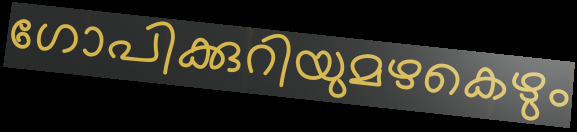
ഗോപിക്കുറിയുമഴകെഴും